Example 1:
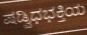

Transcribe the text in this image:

ಷಡ್ವಿಧಭಕ್ತಿಯ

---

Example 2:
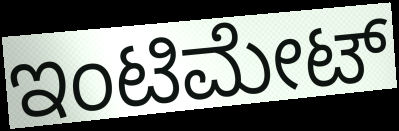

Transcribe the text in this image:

ಇಂಟಿಮೇಟ್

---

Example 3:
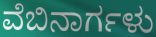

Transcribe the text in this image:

ವೆಬಿನಾರ್ಗಳು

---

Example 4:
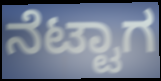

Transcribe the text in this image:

ನೆಟ್ಟಾಗ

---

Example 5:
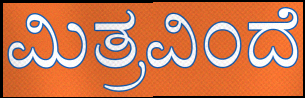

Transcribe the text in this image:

ಮಿತ್ರವಿಂದೆ